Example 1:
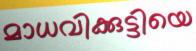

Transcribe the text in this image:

മാധവിക്കുട്ടിയെ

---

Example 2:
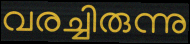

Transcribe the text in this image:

വരച്ചിരുന്നു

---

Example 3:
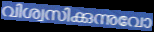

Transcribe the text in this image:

വിശ്വസിക്കുന്നുവോ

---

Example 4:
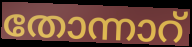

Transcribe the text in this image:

തോന്നാറ്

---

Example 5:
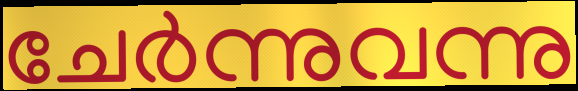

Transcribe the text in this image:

ചേർന്നുവന്നു